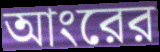
আংরের